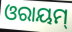
ଓରାୟମ୍